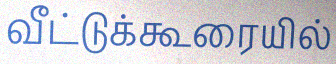
வீட்டுக்கூரையில்